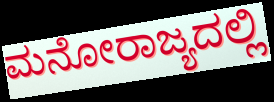
ಮನೋರಾಜ್ಯದಲ್ಲಿ